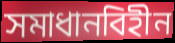
সমাধানবিহীন